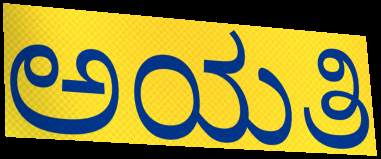
ಅಯತಿ